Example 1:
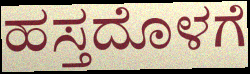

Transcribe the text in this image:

ಹಸ್ತದೊಳಗೆ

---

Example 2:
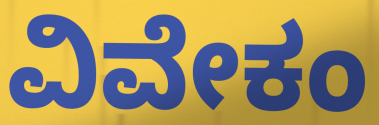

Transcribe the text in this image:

ವಿವೇಕಂ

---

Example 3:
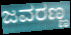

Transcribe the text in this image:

ಜವರಣ್ಣ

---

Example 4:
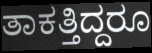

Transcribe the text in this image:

ತಾಕತ್ತಿದ್ದರೂ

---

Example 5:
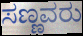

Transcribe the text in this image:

ಸಣ್ಣವರು